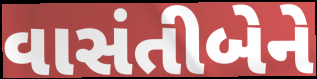
વાસંતીબેને